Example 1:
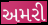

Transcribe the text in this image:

અમરી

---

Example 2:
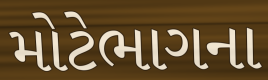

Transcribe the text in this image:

મોટેભાગના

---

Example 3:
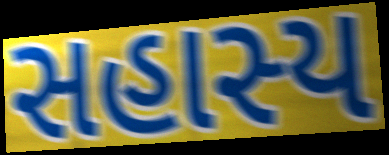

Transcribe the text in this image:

સહાસ્ય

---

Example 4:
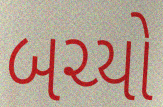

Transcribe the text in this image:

બચ્યો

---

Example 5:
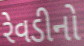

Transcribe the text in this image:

રેવડીનો